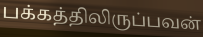
பக்கத்திலிருப்பவன்